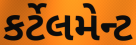
કર્ટેલમેન્ટ